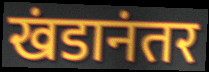
खंडानंतर